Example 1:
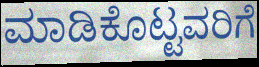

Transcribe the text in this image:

ಮಾಡಿಕೊಟ್ಟವರಿಗೆ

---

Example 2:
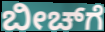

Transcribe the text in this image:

ಬೀಚ್‌ಗೆ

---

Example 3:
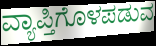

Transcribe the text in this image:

ವ್ಯಾಪ್ತಿಗೊಳಪಡುವ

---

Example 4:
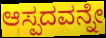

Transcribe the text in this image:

ಆಸ್ಪದವನ್ನೇ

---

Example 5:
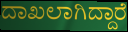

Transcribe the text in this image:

ದಾಖಲಾಗಿದ್ದಾರೆ